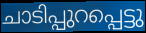
ചാടിപ്പുറപ്പെട്ടു